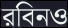
রবিনও